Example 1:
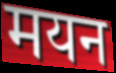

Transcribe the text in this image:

मयन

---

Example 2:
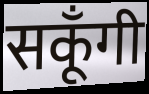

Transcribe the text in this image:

सकूँगी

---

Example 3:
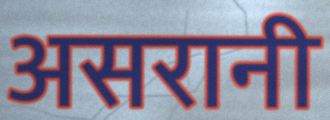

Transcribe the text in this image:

असरानी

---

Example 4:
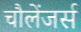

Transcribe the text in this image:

चौलेंजर्स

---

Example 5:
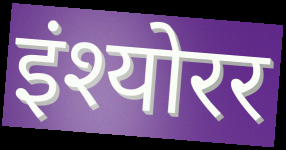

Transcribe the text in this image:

इंश्योरर